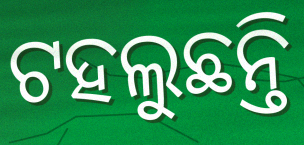
ଟହଲୁଛନ୍ତି